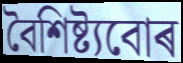
বৈশিষ্ট্যবোৰ